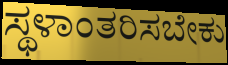
ಸ್ಥಳಾಂತರಿಸಬೇಕು